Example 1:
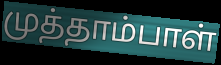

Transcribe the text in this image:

முத்தாம்பாள்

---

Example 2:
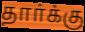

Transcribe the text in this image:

தார்க்கு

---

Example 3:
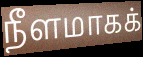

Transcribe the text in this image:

நீளமாகக்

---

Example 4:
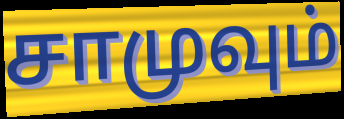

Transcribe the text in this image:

சாமுவும்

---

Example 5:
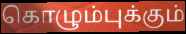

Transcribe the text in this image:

கொழும்புக்கும்